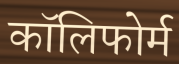
कॉलिफोर्म